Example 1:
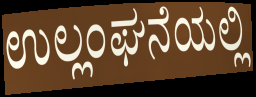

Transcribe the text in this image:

ಉಲ್ಲಂಘನೆಯಲ್ಲಿ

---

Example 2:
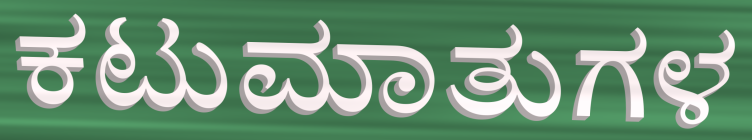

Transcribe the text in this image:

ಕಟುಮಾತುಗಳ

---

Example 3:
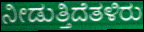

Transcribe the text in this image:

ನೀಡುತ್ತಿದೆತಳಿರು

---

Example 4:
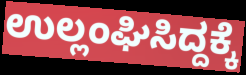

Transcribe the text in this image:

ಉಲ್ಲಂಘಿಸಿದ್ದಕ್ಕೆ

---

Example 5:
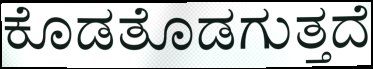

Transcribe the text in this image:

ಕೊಡತೊಡಗುತ್ತದೆ